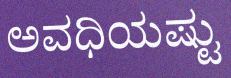
ಅವಧಿಯಷ್ಟು